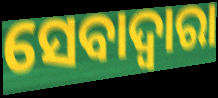
ସେବାଦ୍ବାରା